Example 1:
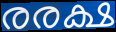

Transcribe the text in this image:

രരക്ഷ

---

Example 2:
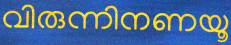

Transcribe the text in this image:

വിരുന്നിനണയൂ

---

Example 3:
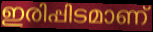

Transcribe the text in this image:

ഇരിപ്പിടമാണ്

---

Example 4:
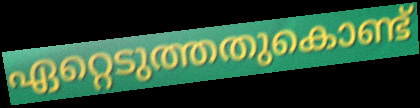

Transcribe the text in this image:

ഏറ്റെടുത്തതുകൊണ്ട്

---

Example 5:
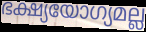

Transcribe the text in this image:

ഭക്ഷ്യയോഗ്യമല്ല